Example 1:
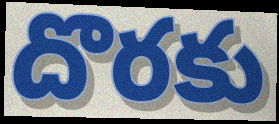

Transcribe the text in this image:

దొరకు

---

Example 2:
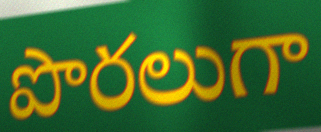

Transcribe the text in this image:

పొరలుగా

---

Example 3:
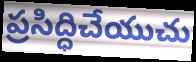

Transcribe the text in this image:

ప్రసిద్ధిచేయుచు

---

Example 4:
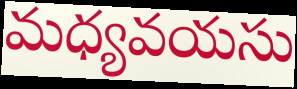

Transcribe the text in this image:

మధ్యవయసు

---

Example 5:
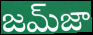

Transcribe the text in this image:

జమ్‌జా